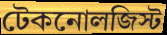
টেকনোলজিস্ট